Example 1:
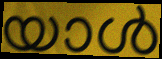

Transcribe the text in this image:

യാൾ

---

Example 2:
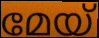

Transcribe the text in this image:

മേയ്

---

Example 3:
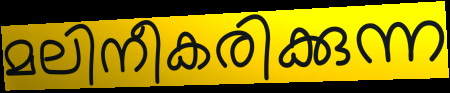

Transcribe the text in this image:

മലിനീകരിക്കുന്ന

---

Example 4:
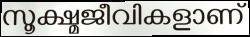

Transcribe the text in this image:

സൂക്ഷ്മജീവികളാണ്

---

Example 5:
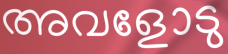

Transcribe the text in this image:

അവളോടു